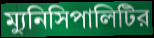
ম্যুনিসিপালিটির